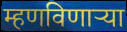
म्हणविणाऱ्या